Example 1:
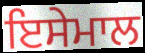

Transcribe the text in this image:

ਇਸੇਮਾਲ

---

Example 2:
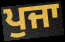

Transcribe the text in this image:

ਪੁਜਾ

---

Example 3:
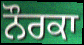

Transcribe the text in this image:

ਨੌਰਕਾ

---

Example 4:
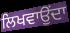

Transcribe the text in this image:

ਲਿਖਵਾਉਂਦਾ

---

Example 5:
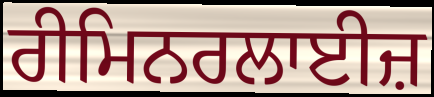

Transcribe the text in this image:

ਰੀਮਿਨਰਲਾਈਜ਼